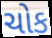
ચોક